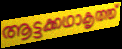
ആട്ടക്കഥാകൃത്ത്